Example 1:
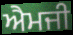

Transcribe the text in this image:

ਐਮਜੀ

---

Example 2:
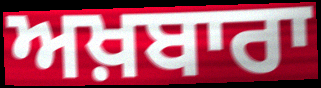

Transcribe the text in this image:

ਅਖ਼ਬਾਰਾ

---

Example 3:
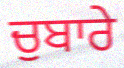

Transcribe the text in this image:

ਚੁਬਾਰੇ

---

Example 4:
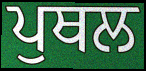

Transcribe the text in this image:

ਪੁਥਲ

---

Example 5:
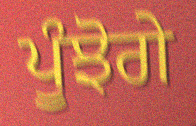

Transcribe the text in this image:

ਪੂੰਝੋਗੇ